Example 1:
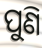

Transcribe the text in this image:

ପୁଣି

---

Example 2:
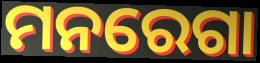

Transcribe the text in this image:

ମନରେଗା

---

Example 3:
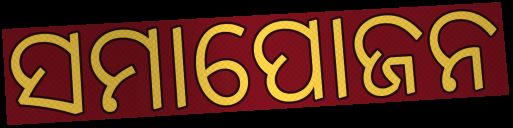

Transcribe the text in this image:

ସମାପୋଜନ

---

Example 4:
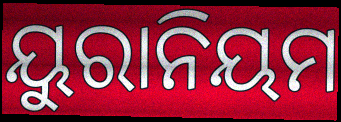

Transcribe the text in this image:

ୟୁରାନିୟମ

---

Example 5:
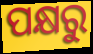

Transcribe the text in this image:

ପକ୍ଷରୁ